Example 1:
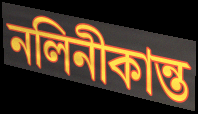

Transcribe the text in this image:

নলিনীকান্ত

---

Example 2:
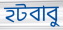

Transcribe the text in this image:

হটবাবু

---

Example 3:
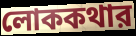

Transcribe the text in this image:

লোককথার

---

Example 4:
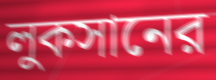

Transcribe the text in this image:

লুকসানের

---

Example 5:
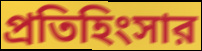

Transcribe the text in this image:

প্রতিহিংসার